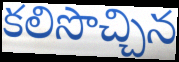
కలిసొచ్చిన